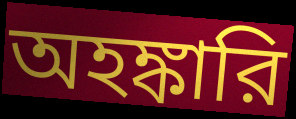
অহঙ্কারি